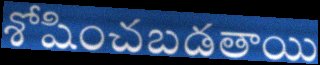
శోషించబడతాయి